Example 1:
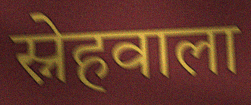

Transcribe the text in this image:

स्नेहवाला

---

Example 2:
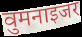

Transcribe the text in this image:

वुमनाइजर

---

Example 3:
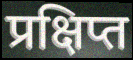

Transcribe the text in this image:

प्रक्षिप्त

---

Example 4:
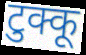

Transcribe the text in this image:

टुक्कू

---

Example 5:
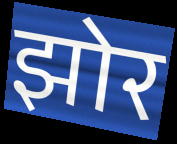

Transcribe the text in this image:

झोर